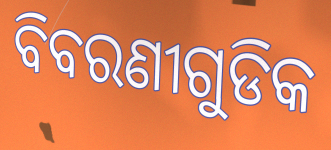
ବିବରଣୀଗୁଡିକ